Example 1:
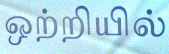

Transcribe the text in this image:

ஒற்றியில்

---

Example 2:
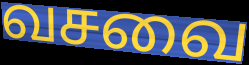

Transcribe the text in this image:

வசவை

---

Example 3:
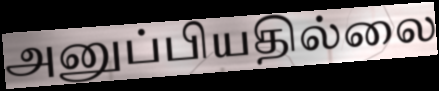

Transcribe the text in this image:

அனுப்பியதில்லை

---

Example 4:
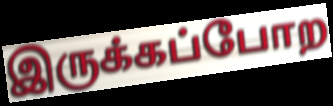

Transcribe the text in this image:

இருக்கப்போற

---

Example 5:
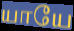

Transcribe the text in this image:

யாயே